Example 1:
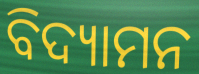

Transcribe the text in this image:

ବିଦ୍ୟାମନ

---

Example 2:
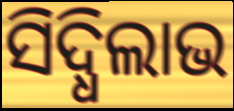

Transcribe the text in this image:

ସିଦ୍ଧିଲାଭ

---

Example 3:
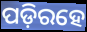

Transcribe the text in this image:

ପଡ଼ିରହେ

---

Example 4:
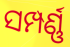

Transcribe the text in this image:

ସମ୍ପର୍ଣ୍ଣ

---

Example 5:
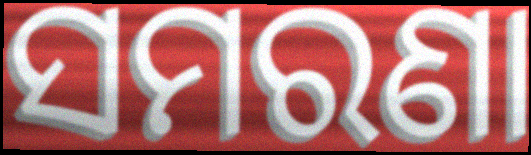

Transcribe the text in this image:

ସମରଣା